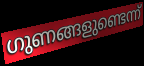
ഗുണങ്ങളുണ്ടെന്ന്